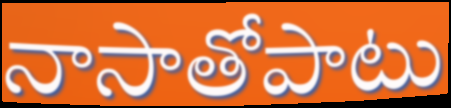
నాసాతోపాటు